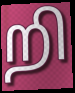
றி